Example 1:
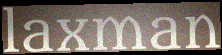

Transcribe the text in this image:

laxman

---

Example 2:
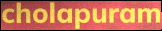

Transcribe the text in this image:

cholapuram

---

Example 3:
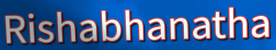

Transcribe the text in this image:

Rishabhanatha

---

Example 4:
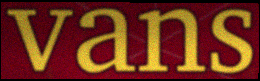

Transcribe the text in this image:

vans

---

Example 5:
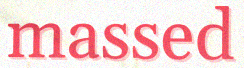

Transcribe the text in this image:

massed